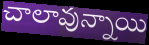
చాలావున్నాయి